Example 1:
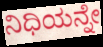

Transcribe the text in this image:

ನಿಧಿಯನ್ನೇ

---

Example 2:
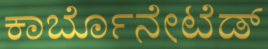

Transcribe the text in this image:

ಕಾರ್ಬೊನೇಟೆಡ್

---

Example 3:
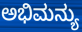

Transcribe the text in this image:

ಅಭಿಮನ್ಯು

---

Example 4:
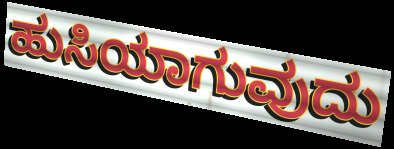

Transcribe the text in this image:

ಹುಸಿಯಾಗುವುದು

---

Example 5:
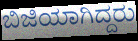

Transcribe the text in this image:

ಬಿಜಿಯಾಗಿದ್ದರು